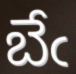
బేఁ